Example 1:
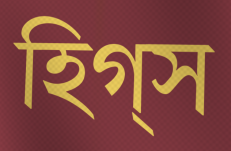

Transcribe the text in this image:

হিগ্স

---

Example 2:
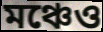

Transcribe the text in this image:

মঞ্চেও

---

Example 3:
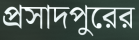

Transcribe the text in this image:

প্রসাদপুরের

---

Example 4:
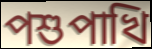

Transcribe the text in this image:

পশুপাখি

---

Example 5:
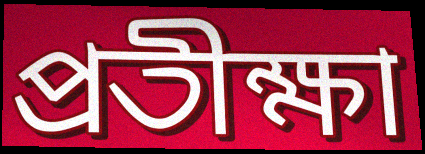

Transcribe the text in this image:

প্রতীক্ষা